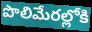
పొలిమేరల్లోకి